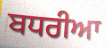
ਬਧਰੀਆ